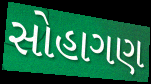
સોહાગણ